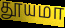
தூயமா